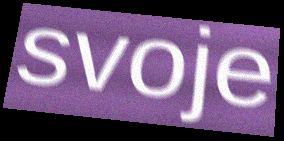
svoje